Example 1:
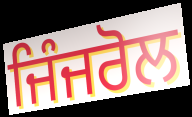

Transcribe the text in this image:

ਜਿੰਜਰੋਲ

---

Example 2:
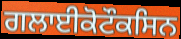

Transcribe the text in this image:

ਗਲਾਈਕੋਟੌਕਸਿਨ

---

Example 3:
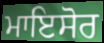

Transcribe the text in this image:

ਮਾਇਸੋਰ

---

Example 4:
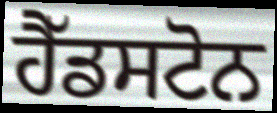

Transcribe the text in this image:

ਹੈੱਡਸਟੋਨ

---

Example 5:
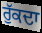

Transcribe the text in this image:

ਰੁੱਕਦਾ